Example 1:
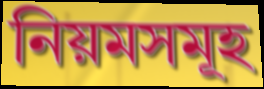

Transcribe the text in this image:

নিয়মসমূহ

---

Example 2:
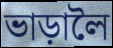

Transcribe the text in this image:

ভাড়ালৈ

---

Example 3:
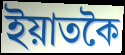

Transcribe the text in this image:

ইয়াতকৈ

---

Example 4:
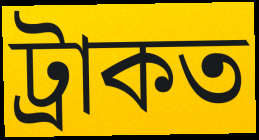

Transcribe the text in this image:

ট্ৰাকত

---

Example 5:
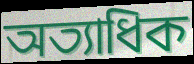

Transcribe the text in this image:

অত্যাধিক